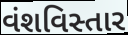
વંશવિસ્તાર